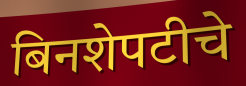
बिनशेपटीचे